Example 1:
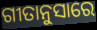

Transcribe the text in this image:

ଗୀତାନୁସାରେ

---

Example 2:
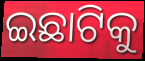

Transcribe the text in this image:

ଇଛାଟିକୁ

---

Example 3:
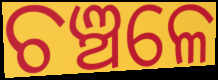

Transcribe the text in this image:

ଚଞ୍ଚଳେ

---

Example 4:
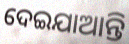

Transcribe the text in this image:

ଦେଇଯାଆନ୍ତି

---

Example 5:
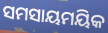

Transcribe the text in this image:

ସମସାୟମୟିକ